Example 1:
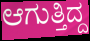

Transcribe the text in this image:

ಆಗುತ್ತಿದ್ದ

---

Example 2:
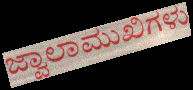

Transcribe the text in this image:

ಜ್ವಾಲಾಮುಖಿಗಳು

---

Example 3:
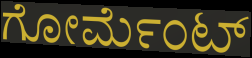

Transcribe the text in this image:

ಗೋರ್ಮೆಂಟ್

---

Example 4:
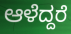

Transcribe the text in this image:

ಆಳೆದ್ದರೆ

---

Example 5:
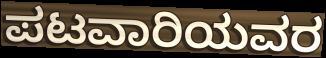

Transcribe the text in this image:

ಪಟವಾರಿಯವರ